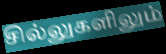
சில்லுகளிலும்